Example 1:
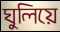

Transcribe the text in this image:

ঘুলিয়ে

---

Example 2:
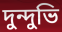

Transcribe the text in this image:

দুন্দুভি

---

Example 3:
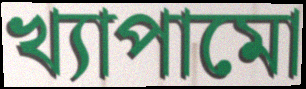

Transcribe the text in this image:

খ্যাপামো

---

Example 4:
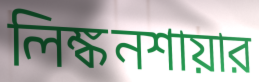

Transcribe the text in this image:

লিঙ্কনশায়ার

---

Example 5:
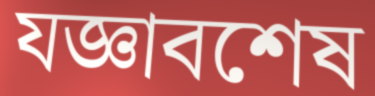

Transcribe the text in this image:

যজ্ঞাবশেষ